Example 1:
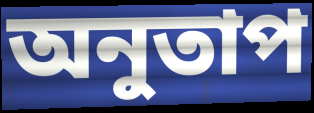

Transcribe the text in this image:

অনুতাপ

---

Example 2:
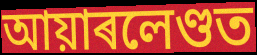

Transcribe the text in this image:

আয়াৰলেণ্ডত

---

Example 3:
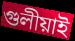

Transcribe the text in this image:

গুলীয়াই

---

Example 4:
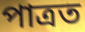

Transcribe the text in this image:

পাত্ৰত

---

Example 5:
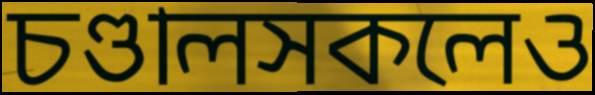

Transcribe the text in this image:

চণ্ডালসকলেও